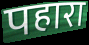
पहारा